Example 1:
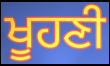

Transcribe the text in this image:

ਖੂਹਣੀ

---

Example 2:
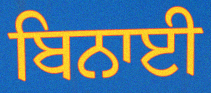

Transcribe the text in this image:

ਬਿਨਾਈ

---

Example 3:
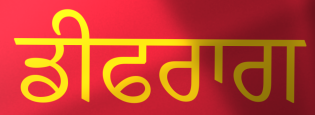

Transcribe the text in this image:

ਡੀਫਰਾਗ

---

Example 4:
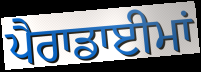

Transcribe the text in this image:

ਪੈਰਾਡਾਈਮਾਂ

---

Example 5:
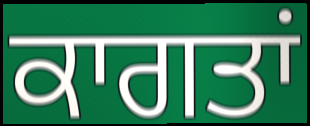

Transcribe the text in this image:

ਕਾਗਤਾਂ